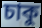
চাকু